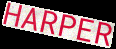
HARPER